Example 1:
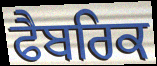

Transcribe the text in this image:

ਫੈਬਰਿਕ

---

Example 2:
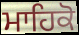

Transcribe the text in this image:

ਮਾਹਿਕੋ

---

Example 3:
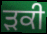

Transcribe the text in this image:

ੜਕੀ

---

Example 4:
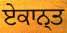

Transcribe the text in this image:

ਏਕਾਨ੍ਤ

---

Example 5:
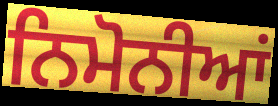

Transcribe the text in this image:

ਨਿਮੋਨੀਆਂ